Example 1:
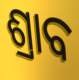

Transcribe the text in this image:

ଶ୍ରାବ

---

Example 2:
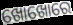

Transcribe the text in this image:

ଖୋଖୋରେ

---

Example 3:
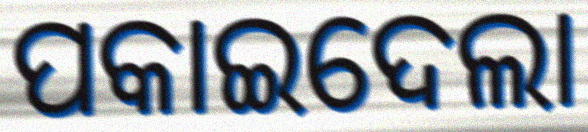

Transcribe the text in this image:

ପକାଇଦେଲା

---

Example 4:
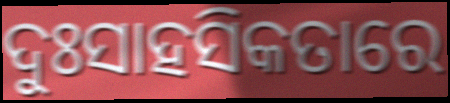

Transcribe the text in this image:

ଦୁଃସାହସିକତାରେ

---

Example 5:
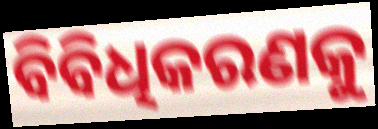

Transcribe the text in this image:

ବିବିଧିକରଣକୁ